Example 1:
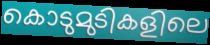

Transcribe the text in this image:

കൊടുമുടികളിലെ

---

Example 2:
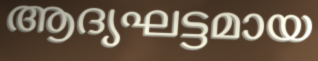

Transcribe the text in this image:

ആദ്യഘട്ടമായ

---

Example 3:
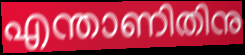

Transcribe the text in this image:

എന്താണിതിനു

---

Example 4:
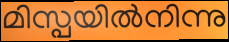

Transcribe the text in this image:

മിസ്പയിൽനിന്നു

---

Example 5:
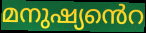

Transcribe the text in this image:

മനുഷ്യൻെറ